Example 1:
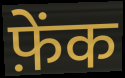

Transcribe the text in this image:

फ़ेंक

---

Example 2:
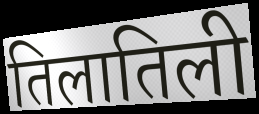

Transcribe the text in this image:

तिलातिली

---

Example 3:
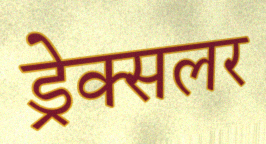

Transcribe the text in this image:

ड्रेक्सलर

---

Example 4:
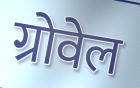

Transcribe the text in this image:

ग्रोवेल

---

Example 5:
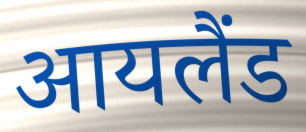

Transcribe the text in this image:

आयलैंड